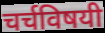
चर्चविषयी